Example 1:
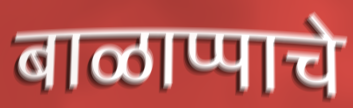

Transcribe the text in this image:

बाळाप्पाचे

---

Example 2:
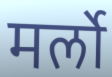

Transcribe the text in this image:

मर्लो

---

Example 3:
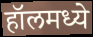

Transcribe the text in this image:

हॉलमध्ये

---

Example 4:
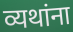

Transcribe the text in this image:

व्यथांना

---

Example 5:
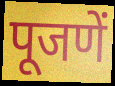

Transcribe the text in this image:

पूजणें